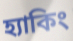
হ্যাকিং